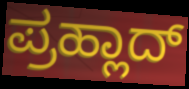
ಪ್ರಹ್ಲಾದ್